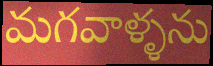
మగవాళ్ళను